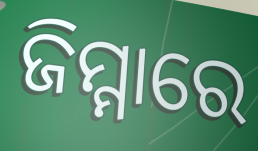
ଜିମ୍ମାରେ